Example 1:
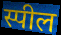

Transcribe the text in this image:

स्पील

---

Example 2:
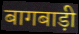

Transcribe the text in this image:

बागबाड़ी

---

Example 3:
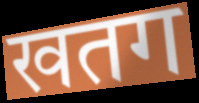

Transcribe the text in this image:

खतग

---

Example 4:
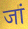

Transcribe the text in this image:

जां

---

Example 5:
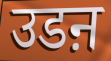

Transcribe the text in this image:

उडऩ